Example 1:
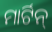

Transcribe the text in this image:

ମାର୍ଟିନ୍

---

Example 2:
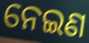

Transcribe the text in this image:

ନେଇଣ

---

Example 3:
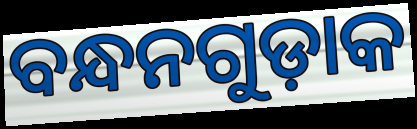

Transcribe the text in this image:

ବନ୍ଧନଗୁଡ଼ାକ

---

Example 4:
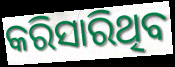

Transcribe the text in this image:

କରିସାରିଥିବ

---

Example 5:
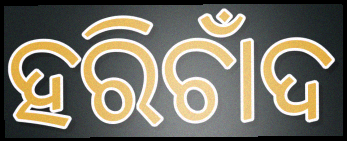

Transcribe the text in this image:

ହରିଚାଁଦ